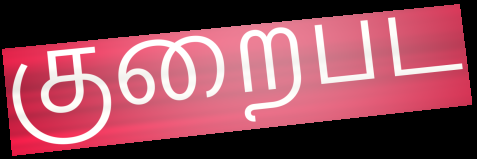
குறைபட